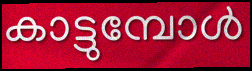
കാട്ടുമ്പോൾ